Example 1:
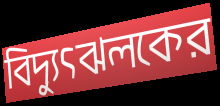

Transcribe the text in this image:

বিদ্যুৎঝলকের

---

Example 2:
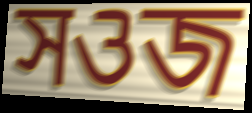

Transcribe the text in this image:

সওজ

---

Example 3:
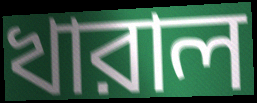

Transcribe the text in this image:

খারাল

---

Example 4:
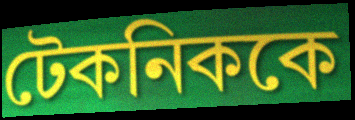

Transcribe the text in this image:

টেকনিককে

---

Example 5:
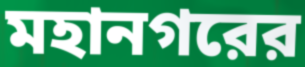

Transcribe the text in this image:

মহানগরের